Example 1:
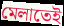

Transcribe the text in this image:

মেলাতেই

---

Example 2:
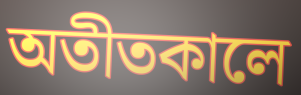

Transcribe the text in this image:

অতীতকালে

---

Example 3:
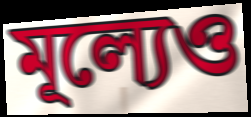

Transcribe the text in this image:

মূল্যেও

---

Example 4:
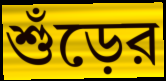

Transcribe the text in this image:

শুঁড়ের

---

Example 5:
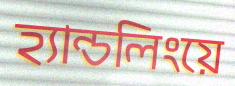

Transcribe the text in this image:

হ্যান্ডলিংয়ে